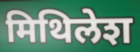
मिथिलेश